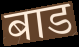
बाड